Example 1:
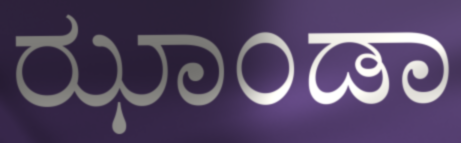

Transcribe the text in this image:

ಝಾಂಡಾ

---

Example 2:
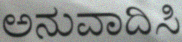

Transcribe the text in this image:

ಅನುವಾದಿಸಿ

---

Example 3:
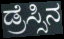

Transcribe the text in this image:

ಡ್ರೆಸ್ಸಿನ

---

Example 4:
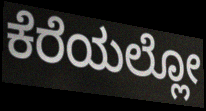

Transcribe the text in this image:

ಕೆರೆಯಲ್ಲೋ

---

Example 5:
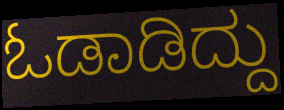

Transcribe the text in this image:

ಓಡಾಡಿದ್ದು